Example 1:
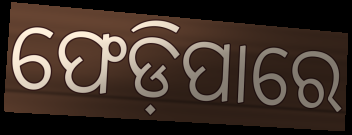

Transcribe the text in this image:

ଫେଡ଼ିପାରେ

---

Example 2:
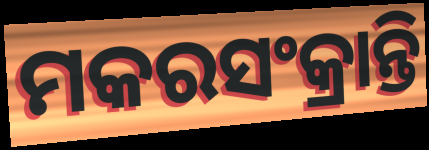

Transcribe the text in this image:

ମକରସଂକ୍ରାନ୍ତି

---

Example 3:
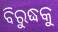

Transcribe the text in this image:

ବିରୁଦ୍ଧକୁ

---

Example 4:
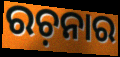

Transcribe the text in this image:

ରଚ଼ନାର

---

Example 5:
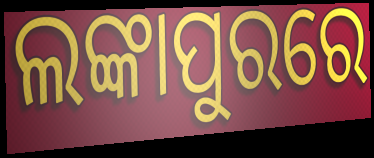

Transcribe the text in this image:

ଲଙ୍କାପୁରରେ